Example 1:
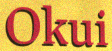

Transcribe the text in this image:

Okui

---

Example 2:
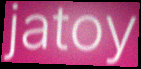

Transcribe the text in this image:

jatoy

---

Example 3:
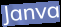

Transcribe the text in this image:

Janva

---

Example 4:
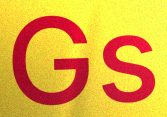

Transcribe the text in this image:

Gs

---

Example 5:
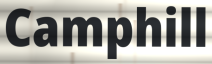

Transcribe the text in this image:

Camphill